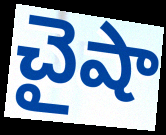
చైషా